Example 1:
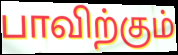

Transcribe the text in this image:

பாவிற்கும்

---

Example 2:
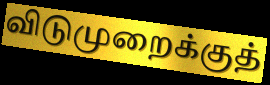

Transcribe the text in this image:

விடுமுறைக்குத்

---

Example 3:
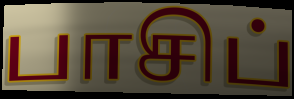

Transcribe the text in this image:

பாசிப்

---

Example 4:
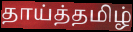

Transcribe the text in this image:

தாய்த்தமிழ்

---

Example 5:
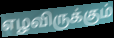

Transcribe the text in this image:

எழவிருக்கும்